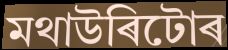
মথাউৰিটোৰ